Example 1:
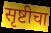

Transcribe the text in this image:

सृष्टीचा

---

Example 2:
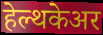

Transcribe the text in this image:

हेल्थकेअर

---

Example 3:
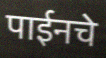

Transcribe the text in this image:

पाईनचे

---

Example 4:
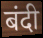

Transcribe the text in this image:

बंदी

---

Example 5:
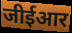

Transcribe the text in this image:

जीईआर